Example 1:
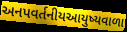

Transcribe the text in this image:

અનપવર્તનીયઆયુષ્યવાળા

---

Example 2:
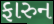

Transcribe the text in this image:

ફારુન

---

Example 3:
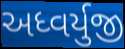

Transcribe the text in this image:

અધ્વર્યુજી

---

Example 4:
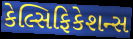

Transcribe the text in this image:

કેલ્સિફિકેશન્સ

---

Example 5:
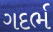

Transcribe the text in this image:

ગદર્ભ